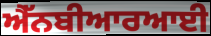
ਐੱਨਬੀਆਰਆਈ